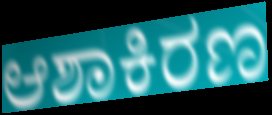
ಆಶಾಕಿರಣ